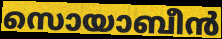
സൊയാബീൻ